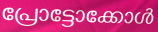
പ്രോട്ടോക്കോൾ